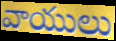
వాయులు